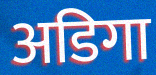
अडिगा